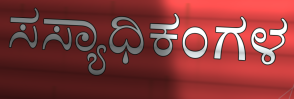
ಸಸ್ಯಾಧಿಕಂಗಳ